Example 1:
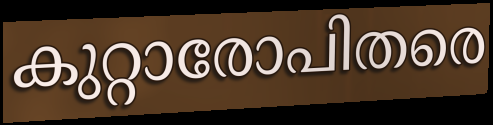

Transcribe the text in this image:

കുറ്റാരോപിതരെ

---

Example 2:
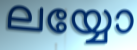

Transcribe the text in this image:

ലയ്യോ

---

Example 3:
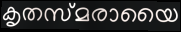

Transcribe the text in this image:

കൃതസ്മരായൈ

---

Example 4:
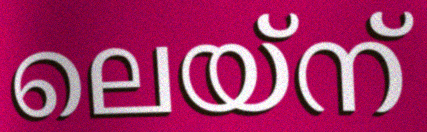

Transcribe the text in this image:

ലെയ്ന്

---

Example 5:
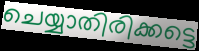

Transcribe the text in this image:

ചെയ്യാതിരിക്കട്ടെ